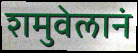
शमुवेलानं